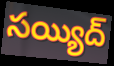
సయ్యిద్